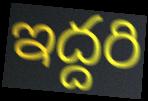
ఇద్దరి